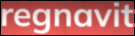
regnavit